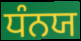
ਧੰਨਯ